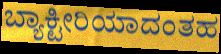
ಬ್ಯಾಕ್ಟೀರಿಯಾದಂತಹ